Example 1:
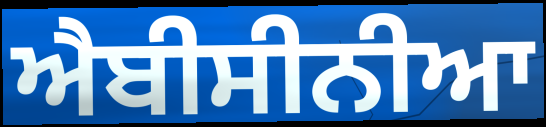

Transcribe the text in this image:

ਐਬੀਸੀਨੀਆ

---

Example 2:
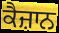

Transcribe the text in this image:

ਕੈਜ਼ਾਨ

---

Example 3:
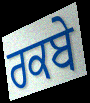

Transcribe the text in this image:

ਰਕਬੇ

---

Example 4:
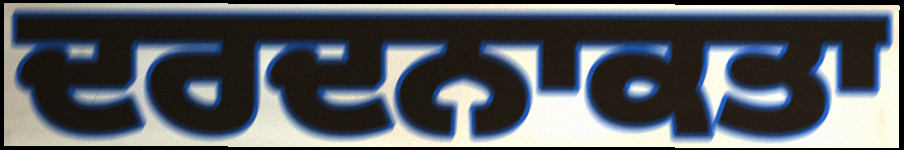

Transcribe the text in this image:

ਦਰਦਨਾਕਤਾ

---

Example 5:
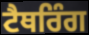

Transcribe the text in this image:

ਟੈਥਰਿੰਗ